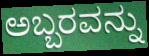
ಅಬ್ಬರವನ್ನು